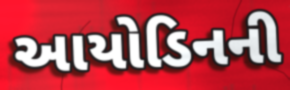
આયોડિનની